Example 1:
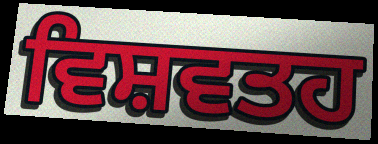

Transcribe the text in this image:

ਵਿਸ਼ਵਤਹ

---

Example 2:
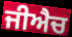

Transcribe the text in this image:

ਜੀਐਚ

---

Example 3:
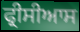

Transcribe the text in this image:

ਫ੍ਰੀਸੀਆਸ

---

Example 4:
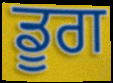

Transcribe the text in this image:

ਡੂਗ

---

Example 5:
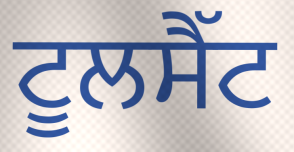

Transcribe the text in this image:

ਟੂਲਸੈੱਟ